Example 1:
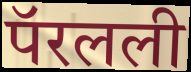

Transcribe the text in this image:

पॅरलली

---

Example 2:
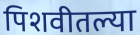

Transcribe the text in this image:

पिशवीतल्या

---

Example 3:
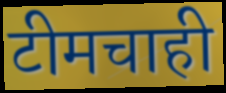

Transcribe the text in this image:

टीमचाही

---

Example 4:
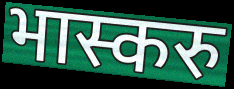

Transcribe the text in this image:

भास्करु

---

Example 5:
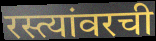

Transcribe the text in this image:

रस्त्यांवरची